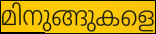
മിനുങ്ങുകളെ